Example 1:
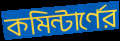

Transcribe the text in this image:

কমিন্টার্ণের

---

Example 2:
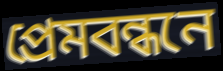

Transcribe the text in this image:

প্রেমবন্ধনে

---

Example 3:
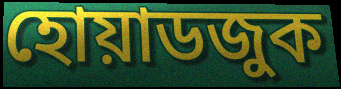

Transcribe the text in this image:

হোয়াডজুক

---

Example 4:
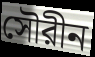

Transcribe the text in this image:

সৌরীন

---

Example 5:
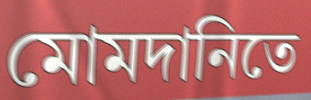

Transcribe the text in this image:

মোমদানিতে